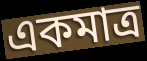
একমাত্ৰ